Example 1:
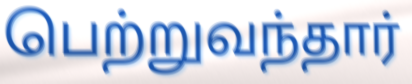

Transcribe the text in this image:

பெற்றுவந்தார்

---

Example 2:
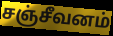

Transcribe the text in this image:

சஞ்சீவனம்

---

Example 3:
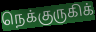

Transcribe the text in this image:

நெக்குருகிக்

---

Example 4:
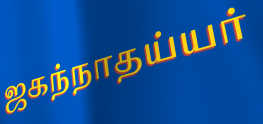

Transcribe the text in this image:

ஜகந்நாதய்யர்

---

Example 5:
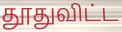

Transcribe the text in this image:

தூதுவிட்ட